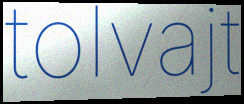
tolvajt